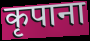
कृपाना